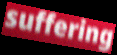
suffering